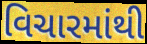
વિચારમાંથી